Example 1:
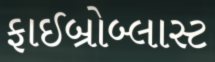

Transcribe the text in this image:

ફાઈબ્રોબ્લાસ્ટ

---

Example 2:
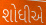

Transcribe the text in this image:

શોધીએ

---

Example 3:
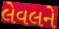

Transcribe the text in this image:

લેવલને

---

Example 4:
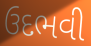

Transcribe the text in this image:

ઉદભવી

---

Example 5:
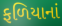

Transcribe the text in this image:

ફળિયાનાં